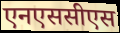
एनएससीएस